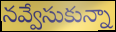
నవ్వేసుకున్నా